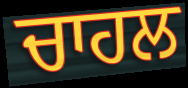
ਚਾਹਲ